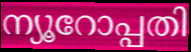
ന്യൂറോപ്പതി